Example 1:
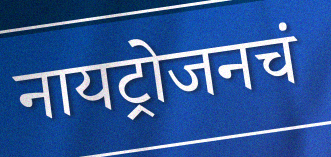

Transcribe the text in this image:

नायट्रोजनचं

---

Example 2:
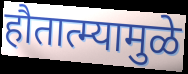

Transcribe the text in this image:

हौतात्म्यामुळे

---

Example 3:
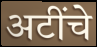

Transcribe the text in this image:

अटींचे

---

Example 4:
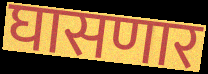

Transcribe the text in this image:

घासणार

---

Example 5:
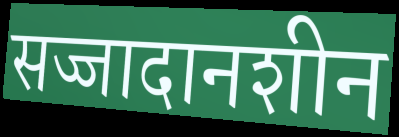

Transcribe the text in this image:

सज्जादानशीन